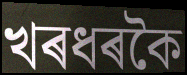
খৰধৰকৈ